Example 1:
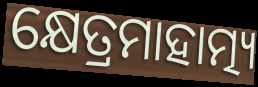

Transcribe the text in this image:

କ୍ଷେତ୍ରମାହାତ୍ମ୍ୟ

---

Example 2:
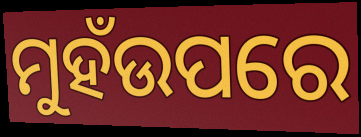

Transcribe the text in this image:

ମୁହଁଉପରେ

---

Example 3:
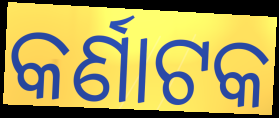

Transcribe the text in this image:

କର୍ଣାଟକ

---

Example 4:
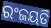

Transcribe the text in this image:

ରଂଜୟତି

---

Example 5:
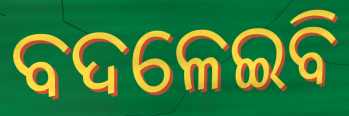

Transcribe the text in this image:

ବଦଳେଇବି